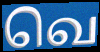
வெ